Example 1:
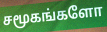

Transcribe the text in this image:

சமூகங்களோ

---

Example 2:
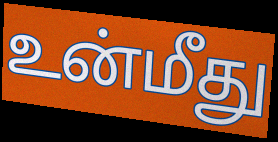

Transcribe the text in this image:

உன்மீது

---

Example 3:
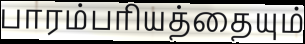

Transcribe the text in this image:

பாரம்பரியத்தையும்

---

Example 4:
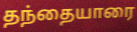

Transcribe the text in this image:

தந்தையாரை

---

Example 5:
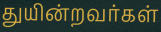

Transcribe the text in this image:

துயின்றவர்கள்